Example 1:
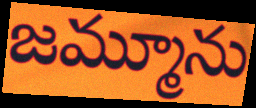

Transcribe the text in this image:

జమ్మూను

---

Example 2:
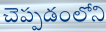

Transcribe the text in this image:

చెప్పడంలోని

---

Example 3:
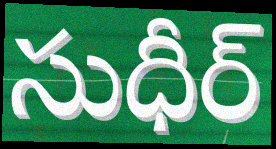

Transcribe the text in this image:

సుధీర్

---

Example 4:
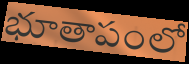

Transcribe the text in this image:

భూతాపంలో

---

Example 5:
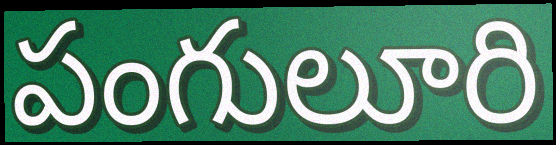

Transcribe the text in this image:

పంగులూరి